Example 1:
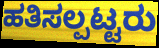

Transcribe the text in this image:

ಹತಿಸಲ್ಪಟ್ಟರು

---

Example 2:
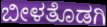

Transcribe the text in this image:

ಬೀಳತೊಡಗಿ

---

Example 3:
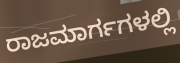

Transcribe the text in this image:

ರಾಜಮಾರ್ಗಗಳಲ್ಲಿ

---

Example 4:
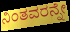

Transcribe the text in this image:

ನಿಂತವರನ್ನೇ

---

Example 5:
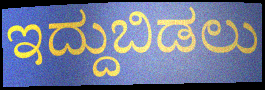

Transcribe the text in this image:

ಇದ್ದುಬಿಡಲು